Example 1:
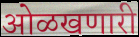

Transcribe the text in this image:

ओळखणारी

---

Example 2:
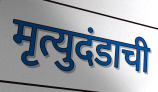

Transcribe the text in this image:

मृत्युदंडाची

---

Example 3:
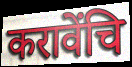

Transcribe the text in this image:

करावेंचि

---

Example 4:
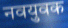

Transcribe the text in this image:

नवयुवक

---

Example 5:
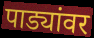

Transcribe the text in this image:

पाड्यांवर